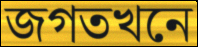
জগতখনে